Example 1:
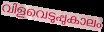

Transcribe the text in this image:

വിളവെടുപ്പുകാലം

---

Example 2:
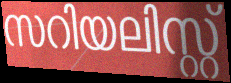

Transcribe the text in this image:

സറിയലിസ്റ്റ്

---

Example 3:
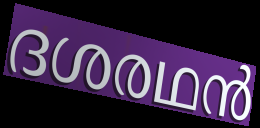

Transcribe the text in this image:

ദശരഥൻ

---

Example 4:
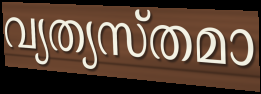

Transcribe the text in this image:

വ്യത്യസ്തമാ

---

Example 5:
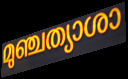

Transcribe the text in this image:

മുഞ്ചത്യാശാ